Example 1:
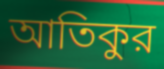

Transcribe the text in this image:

আতিকুর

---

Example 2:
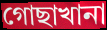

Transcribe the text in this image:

গোছাখানা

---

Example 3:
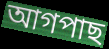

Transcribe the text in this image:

আগপাছ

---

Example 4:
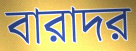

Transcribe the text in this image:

বারাদর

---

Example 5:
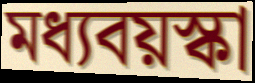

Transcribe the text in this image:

মধ্যবয়স্কা